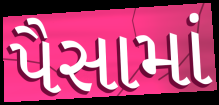
પૈસામાં